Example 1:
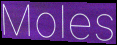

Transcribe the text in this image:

Moles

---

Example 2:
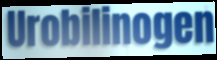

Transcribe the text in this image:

Urobilinogen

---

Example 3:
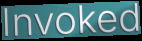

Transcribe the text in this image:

Invoked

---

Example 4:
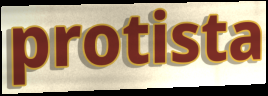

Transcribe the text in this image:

protista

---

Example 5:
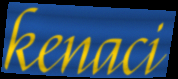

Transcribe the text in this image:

kenaci